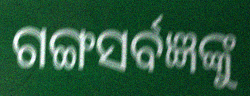
ଗଙ୍ଗସର୍ବଜ୍ଞଙ୍କୁ